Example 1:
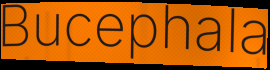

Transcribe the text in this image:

Bucephala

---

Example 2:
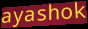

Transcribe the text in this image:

ayashok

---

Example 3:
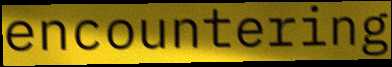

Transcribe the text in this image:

encountering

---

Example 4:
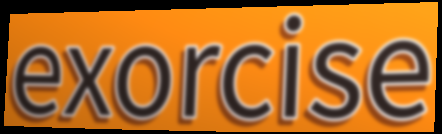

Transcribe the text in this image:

exorcise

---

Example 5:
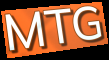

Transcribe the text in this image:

MTG